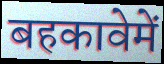
बहकावेमें